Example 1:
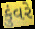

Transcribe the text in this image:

કુંવરે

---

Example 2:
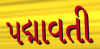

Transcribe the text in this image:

પદ્માવતી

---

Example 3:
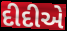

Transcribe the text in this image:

દીદીએ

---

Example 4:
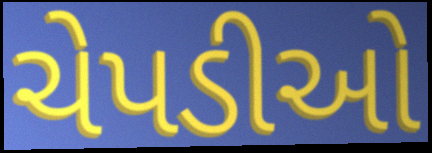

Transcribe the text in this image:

ચેપડીઓ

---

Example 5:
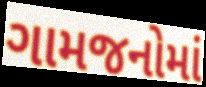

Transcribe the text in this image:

ગામજનોમાં